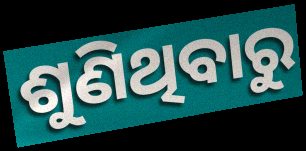
ଶୁଣିଥିବାରୁ